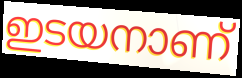
ഇടയനാണ്